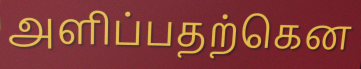
அளிப்பதற்கென